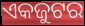
ଏକଜୁଟର